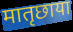
मातृछाया